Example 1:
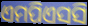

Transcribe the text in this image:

ଏମପିଏସସି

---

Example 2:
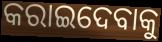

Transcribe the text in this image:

କରାଇଦେବାକୁ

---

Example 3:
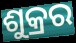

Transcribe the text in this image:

ଶୁକ୍ରର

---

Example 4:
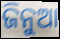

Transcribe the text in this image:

ଜିନୁଆ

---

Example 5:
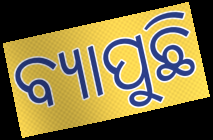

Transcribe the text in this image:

ବ୍ୟାପୁଛି